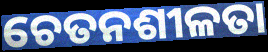
ଚେତନଶୀଳତା